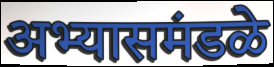
अभ्यासमंडळे